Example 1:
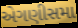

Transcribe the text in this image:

એગણીસમા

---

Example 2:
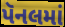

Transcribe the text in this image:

પૅનલમાં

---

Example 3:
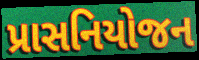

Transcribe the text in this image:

પ્રાસનિયોજન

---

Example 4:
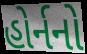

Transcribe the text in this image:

હોર્નનો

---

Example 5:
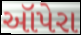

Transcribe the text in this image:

ઑપેરા